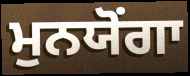
ਮੁਨਯੋਂਗਾ